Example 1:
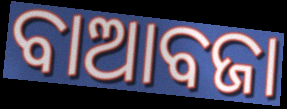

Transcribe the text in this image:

ବାଆବଜା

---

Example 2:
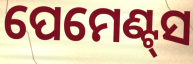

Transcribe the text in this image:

ପେମେଣ୍ଟ୍‌ସ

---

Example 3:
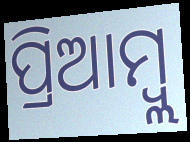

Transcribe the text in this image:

ପ୍ରିଆମ୍ବ୍ଲ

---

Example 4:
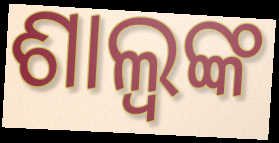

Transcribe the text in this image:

ଶାଲ୍ୱଙ୍କ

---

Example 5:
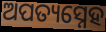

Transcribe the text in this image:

ଅପତ୍ୟସ୍ନେହ